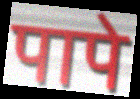
पापे